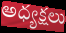
అధ్యక్షలు